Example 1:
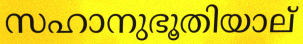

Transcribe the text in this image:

സഹാനുഭൂതിയാല്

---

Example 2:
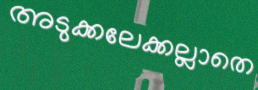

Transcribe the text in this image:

അടുക്കലേക്കല്ലാതെ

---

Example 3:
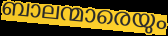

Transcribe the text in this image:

ബാലന്മാരെയും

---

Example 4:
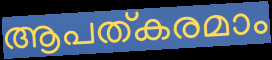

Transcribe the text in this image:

ആപത്കരമാം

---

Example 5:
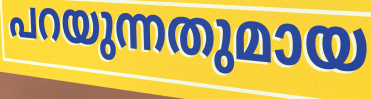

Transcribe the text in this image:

പറയുന്നതുമായ